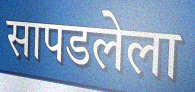
सापडलेला